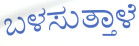
ಬಳಸುತ್ತಾಳೆ